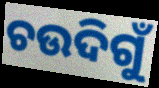
ଚଉଦିଗୁଁ